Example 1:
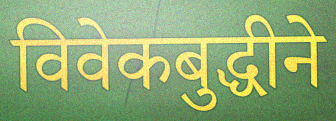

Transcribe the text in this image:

विवेकबुद्धीने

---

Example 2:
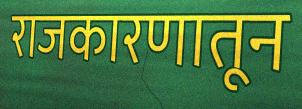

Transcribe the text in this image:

राजकारणातून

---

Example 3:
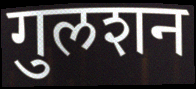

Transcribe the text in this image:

गुलशन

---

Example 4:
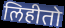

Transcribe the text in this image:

लिहीतो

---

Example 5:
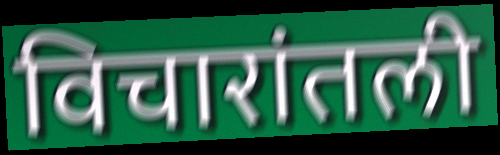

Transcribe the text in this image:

विचारांतली